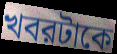
খবরটাকে